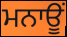
ਮਨਾਊਂ